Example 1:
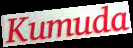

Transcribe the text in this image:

Kumuda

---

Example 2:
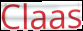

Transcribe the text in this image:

Claas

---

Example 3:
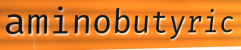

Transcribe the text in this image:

aminobutyric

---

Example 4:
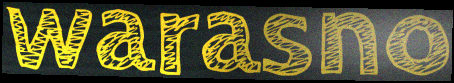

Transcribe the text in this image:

warasno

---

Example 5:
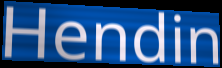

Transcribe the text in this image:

Hendin